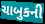
ચાબુકની